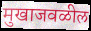
मुखाजवळील